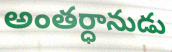
అంతర్ధానుడు